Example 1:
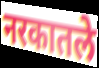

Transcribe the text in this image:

नरकातले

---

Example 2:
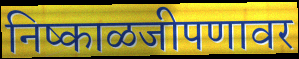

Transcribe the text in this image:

निष्काळजीपणावर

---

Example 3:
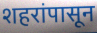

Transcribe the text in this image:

शहरांपासून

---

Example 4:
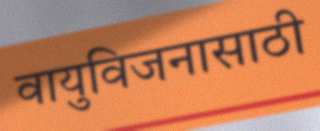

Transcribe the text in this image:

वायुविजनासाठी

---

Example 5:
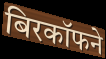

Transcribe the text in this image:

बिरकॉफने